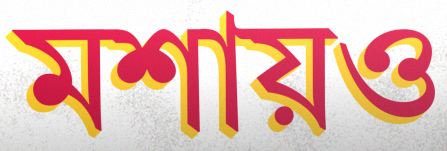
মশায়ও